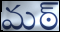
మఠ్